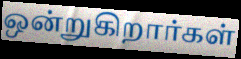
ஒன்றுகிறார்கள்